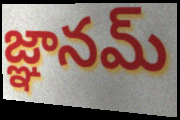
జ్ఞానమ్